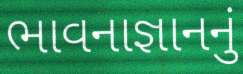
ભાવનાજ્ઞાનનું